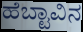
ಹೆಬ್ಟಾವಿನ